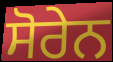
ਸੋਰੇਨ